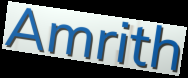
Amrith